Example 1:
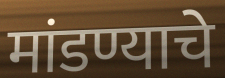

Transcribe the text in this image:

मांडण्याचे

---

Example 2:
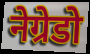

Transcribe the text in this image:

नेग्रेडो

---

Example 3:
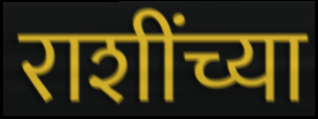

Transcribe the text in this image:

राशींच्या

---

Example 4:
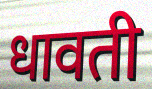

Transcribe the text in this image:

धावती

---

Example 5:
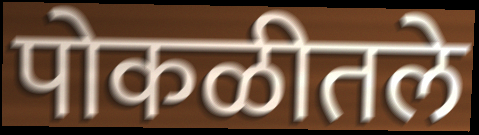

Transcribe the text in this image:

पोकळीतले